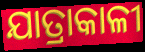
ଯାତ୍ରାକାଳୀ